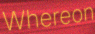
Whereon